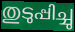
തുടുപ്പിച്ചു